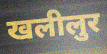
खलीलुर